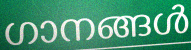
ഗാനങ്ങൾ